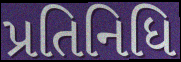
પ્રતિનિધિ